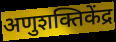
अणुशक्तिकेंद्र